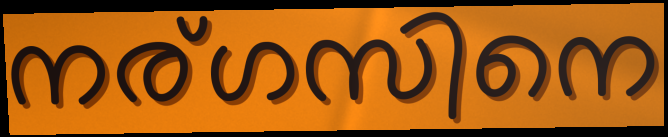
നര്ഗസിനെ